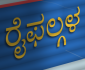
ರೈಫಲ್ಗಳ